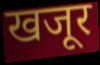
खजूर